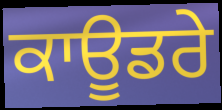
ਕਾਊਡਰੇ